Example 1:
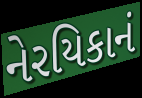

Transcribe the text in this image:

નેરયિકાનં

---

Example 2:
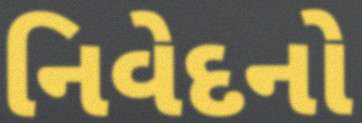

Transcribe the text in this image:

નિવેદનો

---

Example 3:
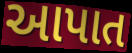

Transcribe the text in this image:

આપાત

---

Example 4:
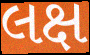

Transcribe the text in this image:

લક્ષ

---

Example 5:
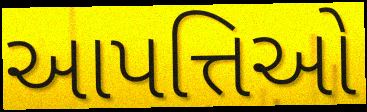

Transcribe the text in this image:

આપત્તિઓ